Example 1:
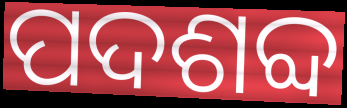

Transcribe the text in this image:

ପଦଶବ୍ଦ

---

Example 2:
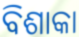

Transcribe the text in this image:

ବିଶାକା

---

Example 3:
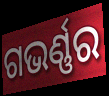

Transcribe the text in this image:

ଗଭର୍ଣ୍ଣର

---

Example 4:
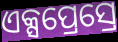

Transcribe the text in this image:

ଏକ୍ସପ୍ରେସ୍ରେ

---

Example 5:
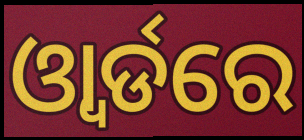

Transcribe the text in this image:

ଓ୍ବାର୍ଡରେ